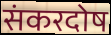
संकरदोष